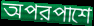
অপরপাশে